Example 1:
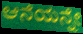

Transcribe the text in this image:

ಆನೆಯನ್ನೇ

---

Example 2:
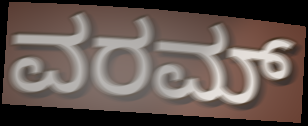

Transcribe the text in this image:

ವರಮ್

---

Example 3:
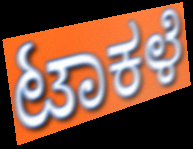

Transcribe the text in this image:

ಟಾಕಳೆ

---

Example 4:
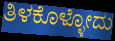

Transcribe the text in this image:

ತಿಳಕೊಳ್ಳೋದು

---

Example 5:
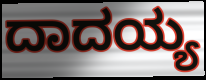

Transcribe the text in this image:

ದಾದಯ್ಯ